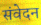
संवेदन